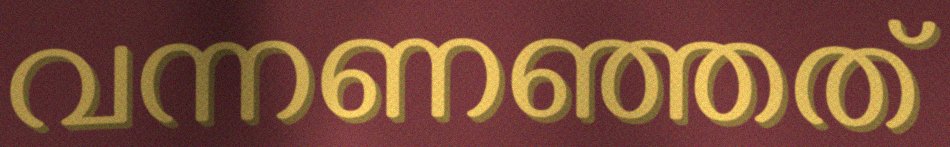
വന്നണഞ്ഞത്